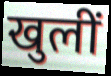
खुलीं